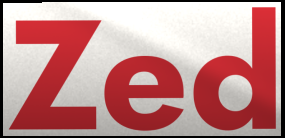
Zed